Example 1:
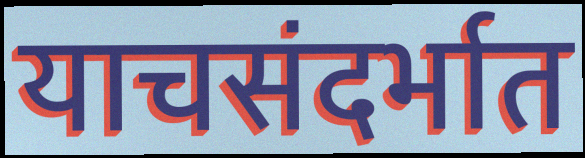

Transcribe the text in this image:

याचसंदर्भात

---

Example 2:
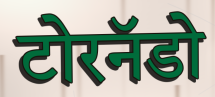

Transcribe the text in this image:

टोरनॅडो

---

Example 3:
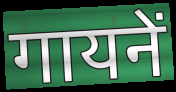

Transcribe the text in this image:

गायनें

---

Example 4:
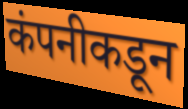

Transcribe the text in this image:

कंपनीकडून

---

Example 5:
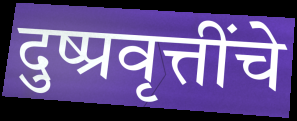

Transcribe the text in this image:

दुष्प्रवृत्तींचे